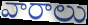
వారాలు